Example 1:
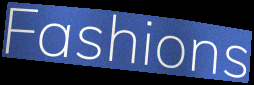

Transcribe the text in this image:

Fashions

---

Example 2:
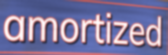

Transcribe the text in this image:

amortized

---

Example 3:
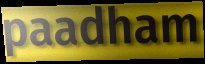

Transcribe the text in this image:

paadham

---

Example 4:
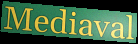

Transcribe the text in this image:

Mediaval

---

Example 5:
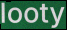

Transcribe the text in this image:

looty